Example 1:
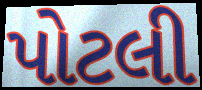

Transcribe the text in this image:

પોટલી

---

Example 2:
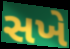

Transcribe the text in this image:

સખે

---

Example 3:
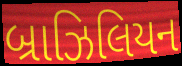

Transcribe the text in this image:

બ્રાઝિલિયન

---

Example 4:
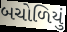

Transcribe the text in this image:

બચોળિયું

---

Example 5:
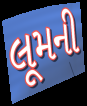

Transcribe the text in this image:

લૂમની